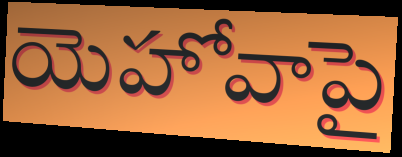
యెహోవాపై